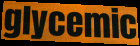
glycemic